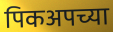
पिकअपच्या